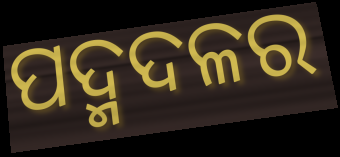
ପଦ୍ମଦଳର